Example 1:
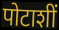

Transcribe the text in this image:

पोटाशीं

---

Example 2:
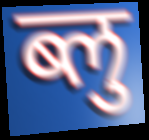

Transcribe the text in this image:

ब्लु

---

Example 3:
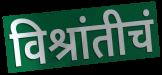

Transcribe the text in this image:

विश्रांतीचं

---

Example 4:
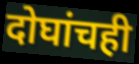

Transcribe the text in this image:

दोघांचही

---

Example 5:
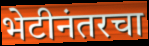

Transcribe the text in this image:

भेटीनंतरचा